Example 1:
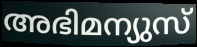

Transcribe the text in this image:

അഭിമന്യുസ്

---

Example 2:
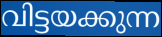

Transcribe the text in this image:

വിട്ടയക്കുന്ന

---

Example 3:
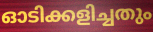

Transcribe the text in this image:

ഓടിക്കളിച്ചതും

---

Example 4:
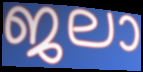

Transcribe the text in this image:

ജലാ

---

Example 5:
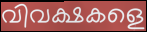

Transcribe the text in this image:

വിവക്ഷകളെ